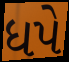
ધપે